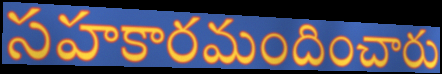
సహకారమందించారు